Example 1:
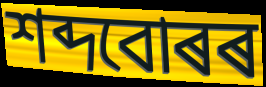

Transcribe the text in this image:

শব্দবোৰৰ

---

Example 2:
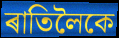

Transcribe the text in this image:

ৰাতিলৈকে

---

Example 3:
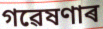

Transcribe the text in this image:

গৱেষণাৰ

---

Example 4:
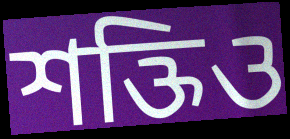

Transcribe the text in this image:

শক্তিও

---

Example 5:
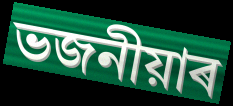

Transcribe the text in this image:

ভজনীয়াৰ